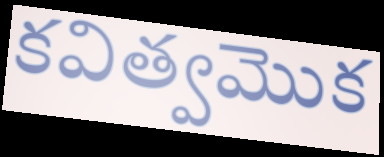
కవిత్వమొక